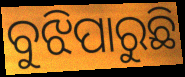
ବୁଝିପାରୁଛି